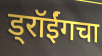
ड्रॉईंगचा